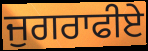
ਜੁਗਰਾਫੀਏ